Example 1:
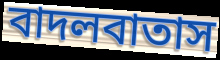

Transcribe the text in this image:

বাদলবাতাস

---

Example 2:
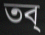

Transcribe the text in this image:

তব্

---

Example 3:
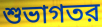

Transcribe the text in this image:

শুভাগতর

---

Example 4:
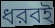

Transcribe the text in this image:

ধরবই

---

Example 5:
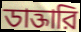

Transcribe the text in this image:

ডাক্তারি